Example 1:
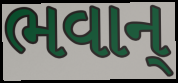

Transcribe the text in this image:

ભવાન્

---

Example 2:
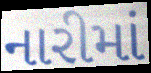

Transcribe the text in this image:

નારીમાં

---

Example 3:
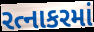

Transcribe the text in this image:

રત્નાકરમાં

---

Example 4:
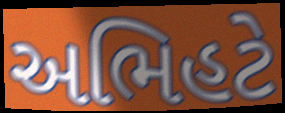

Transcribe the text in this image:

અભિહટે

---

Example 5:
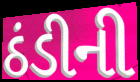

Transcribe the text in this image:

ઠંડીની